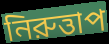
নিরুত্তাপ